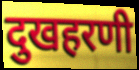
दुखहरणी